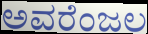
ಅವರೆಂಜಲ